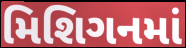
મિશિગનમાં